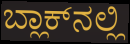
ಬ್ಲಾಕ್‌ನಲ್ಲಿ